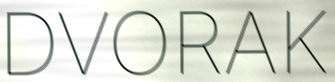
DVORAK